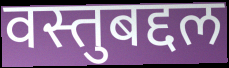
वस्तुबद्दल